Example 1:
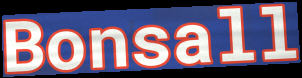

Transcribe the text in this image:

Bonsall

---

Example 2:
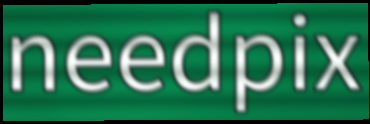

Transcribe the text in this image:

needpix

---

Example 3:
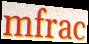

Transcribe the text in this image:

mfrac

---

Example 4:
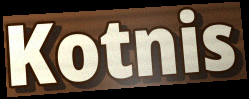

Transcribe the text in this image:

Kotnis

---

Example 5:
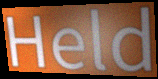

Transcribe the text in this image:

Held